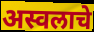
अस्वलाचे